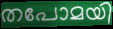
തപോമയി